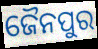
ଜୈନପୁର